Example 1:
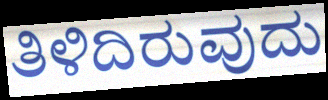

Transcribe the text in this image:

ತಿಳಿದಿರುವುದು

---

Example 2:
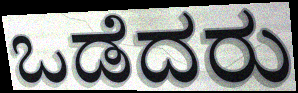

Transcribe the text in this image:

ಒಡೆದರು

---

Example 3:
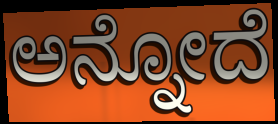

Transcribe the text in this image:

ಅನ್ನೋದೆ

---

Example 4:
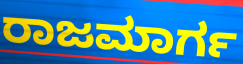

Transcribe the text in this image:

ರಾಜಮಾರ್ಗ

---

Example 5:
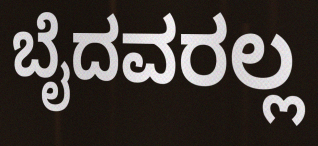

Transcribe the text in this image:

ಬೈದವರಲ್ಲ